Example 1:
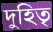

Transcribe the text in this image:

দুহিতৃ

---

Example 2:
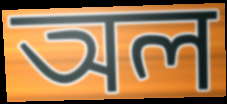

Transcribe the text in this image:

অল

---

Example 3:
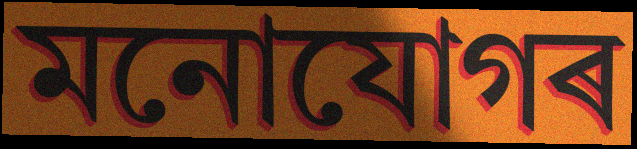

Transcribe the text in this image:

মনোযোগৰ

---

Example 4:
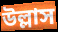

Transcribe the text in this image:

উল্লাস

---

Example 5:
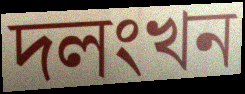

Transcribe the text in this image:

দলংখন